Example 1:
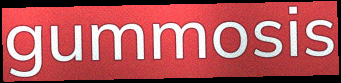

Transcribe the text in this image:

gummosis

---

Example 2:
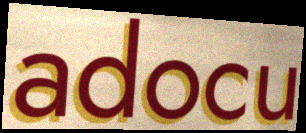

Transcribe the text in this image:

adocu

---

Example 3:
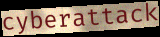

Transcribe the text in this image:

cyberattack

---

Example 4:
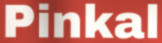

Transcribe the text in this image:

Pinkal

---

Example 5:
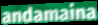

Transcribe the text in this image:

andamaina